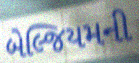
બેલ્જિયમની